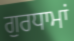
ਗੁਰਧਾਮਾਂ